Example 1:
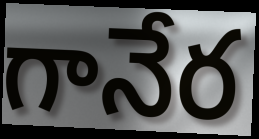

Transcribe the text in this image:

గానేర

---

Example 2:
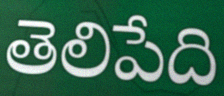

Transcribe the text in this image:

తెలిపేది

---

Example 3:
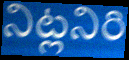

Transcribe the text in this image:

నిట్లనిరి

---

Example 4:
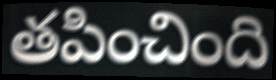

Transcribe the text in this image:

తపించింది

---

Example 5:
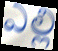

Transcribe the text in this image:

ఎల్లి